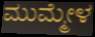
ಮುಮ್ಮೇಳ